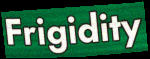
Frigidity